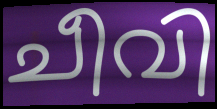
ചീവി